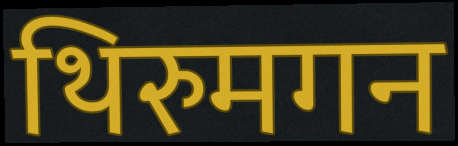
थिरुमगन